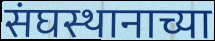
संघस्थानाच्या